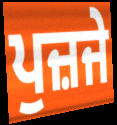
ਪੁਜ਼ਜੇ